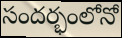
సందర్భంలోనో